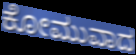
ಕೋಮುವಾದ